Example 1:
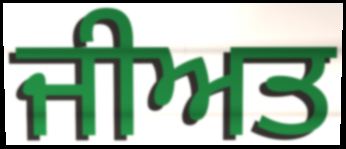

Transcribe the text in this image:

ਜੀਅਤ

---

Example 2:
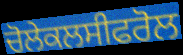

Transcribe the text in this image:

ਚੋਲੇਕਲਸੀਫਰੋਲ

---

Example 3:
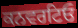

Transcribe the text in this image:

ਕਨਵਰਟਿਓ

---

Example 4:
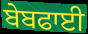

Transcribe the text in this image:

ਬੇਬਫਾਈ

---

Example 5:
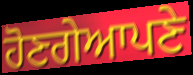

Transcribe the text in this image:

ਹੋਣਗੇਆਪਣੇ